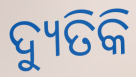
ଦ୍ୟୁତିକି